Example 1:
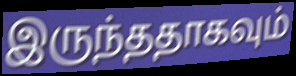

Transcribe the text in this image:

இருந்ததாகவும்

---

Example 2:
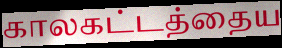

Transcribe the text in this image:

காலகட்டத்தைய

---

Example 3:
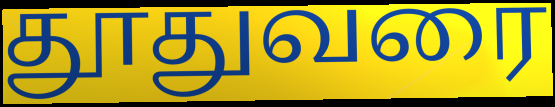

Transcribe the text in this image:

தூதுவரை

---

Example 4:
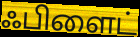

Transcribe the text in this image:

ஃபிளைட்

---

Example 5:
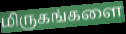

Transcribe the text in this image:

மிருகங்களை